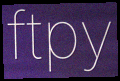
ftpy